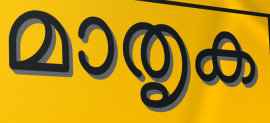
മാതൃക